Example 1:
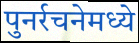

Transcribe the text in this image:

पुनर्रचनेमध्ये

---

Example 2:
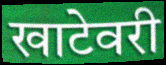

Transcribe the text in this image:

खाटेवरी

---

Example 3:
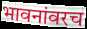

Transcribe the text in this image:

भावनांवरच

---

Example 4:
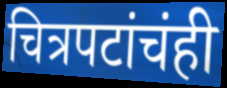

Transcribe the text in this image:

चित्रपटांचंही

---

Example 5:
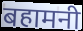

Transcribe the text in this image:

बहामनी